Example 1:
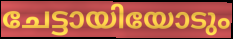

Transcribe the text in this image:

ചേട്ടായിയോടും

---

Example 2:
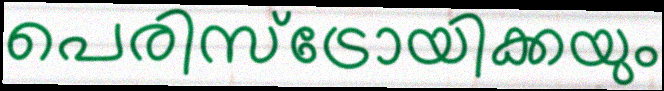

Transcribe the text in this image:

പെരിസ്ട്രോയിക്കയും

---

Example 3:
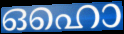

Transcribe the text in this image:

ഒഹൊ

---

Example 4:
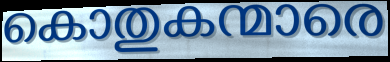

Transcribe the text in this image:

കൊതുകന്മാരെ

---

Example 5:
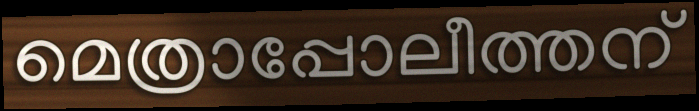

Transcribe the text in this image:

മെത്രാപ്പോലീത്തന്